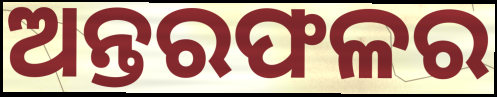
ଅନ୍ତରଫଳର